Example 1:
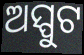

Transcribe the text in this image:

ଅସ୍ପୁଟ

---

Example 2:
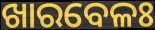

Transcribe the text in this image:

ଖାରବେଳଃ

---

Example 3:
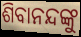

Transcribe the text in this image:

ଶିବାନନ୍ଦଙ୍କୁ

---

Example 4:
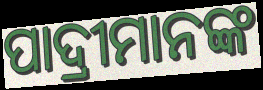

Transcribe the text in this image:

ପାଦ୍ରୀମାନଙ୍କ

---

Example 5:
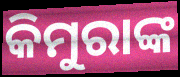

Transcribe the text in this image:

କିମୁରାଙ୍କ